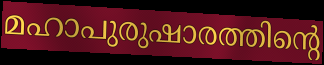
മഹാപുരുഷാരത്തിന്റെ